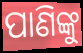
ପାଣିଙ୍କୁ